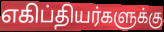
எகிப்தியர்களுக்கு